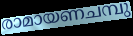
രാമായണചമ്പു